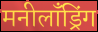
मनीलॉंड्रिंग